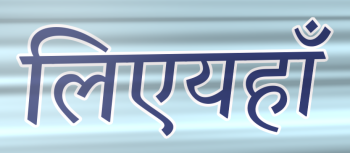
लिएयहाँ